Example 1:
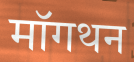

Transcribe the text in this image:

मॉगथन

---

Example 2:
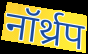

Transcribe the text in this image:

नॉर्थ्रप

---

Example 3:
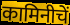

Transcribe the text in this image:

कामिनीचें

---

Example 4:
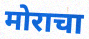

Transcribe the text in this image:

मोराचा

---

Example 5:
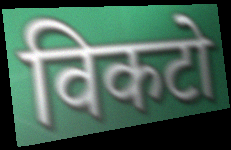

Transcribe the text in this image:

विकटो